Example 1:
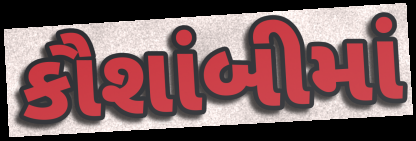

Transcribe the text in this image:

કૌશાંબીમાં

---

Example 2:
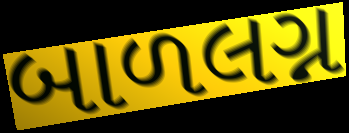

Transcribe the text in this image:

બાળલગ્ન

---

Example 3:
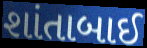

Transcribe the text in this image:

શાંતાબાઈ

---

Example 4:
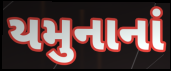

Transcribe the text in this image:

યમુનાનાં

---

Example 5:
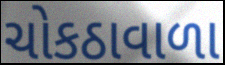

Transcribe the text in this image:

ચોકઠાવાળા